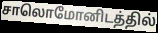
சாலொமோனிடத்தில்